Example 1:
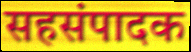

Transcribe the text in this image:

सहसंपादक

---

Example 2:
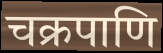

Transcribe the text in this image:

चक्रपाणि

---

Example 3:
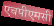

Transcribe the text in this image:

एचपीएमसी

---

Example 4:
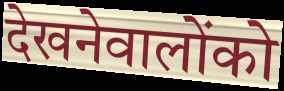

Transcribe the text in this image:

देखनेवालोंको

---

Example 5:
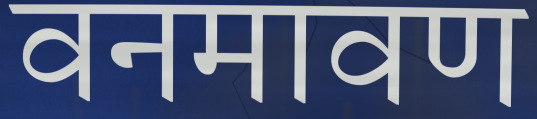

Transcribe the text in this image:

वनमावण